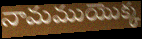
నామముయొక్క